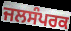
ਜਲਸੰਪਰਕ